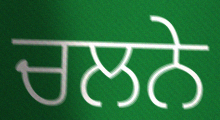
ਚਲਨੇ